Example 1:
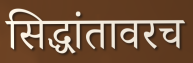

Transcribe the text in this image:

सिद्धांतावरच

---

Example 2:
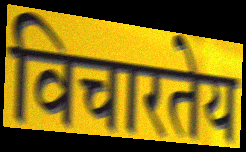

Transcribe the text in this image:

विचारतेय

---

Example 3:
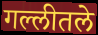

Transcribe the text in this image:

गल्लीतले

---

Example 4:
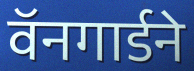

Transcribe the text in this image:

वॅनगार्डने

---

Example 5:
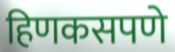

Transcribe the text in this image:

हिणकसपणे